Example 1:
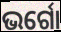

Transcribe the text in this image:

ଭର୍ଗୋ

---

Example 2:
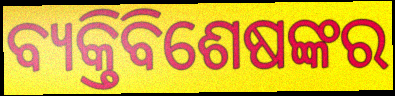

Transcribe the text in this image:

ବ୍ୟକ୍ତିବିଶେଷଙ୍କର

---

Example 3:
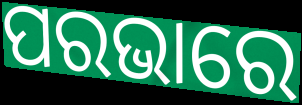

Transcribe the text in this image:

ପରଭାରେ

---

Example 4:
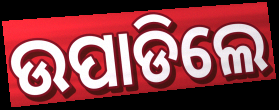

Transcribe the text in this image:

ଉପାଡିଲେ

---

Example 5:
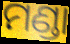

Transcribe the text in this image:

ମଣ୍ଡା